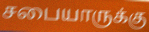
சபையாருக்கு